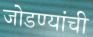
जोडण्यांची